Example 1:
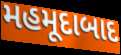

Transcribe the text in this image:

મહમૂદાબાદ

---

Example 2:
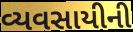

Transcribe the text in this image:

વ્યવસાયીની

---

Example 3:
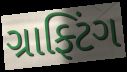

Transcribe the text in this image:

ગ્રાફ્ટિંગ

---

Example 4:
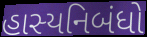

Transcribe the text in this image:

હાસ્યનિબંધો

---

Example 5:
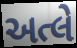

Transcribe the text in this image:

અત્લે